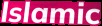
lslamic